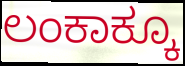
ಲಂಕಾಕ್ಕೂ